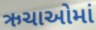
ઋચાઓમાં